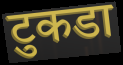
टुकडा